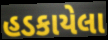
હડકાયેલા